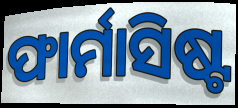
ଫାର୍ମାସିଷ୍ଟ